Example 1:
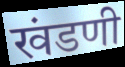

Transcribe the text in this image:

खंडणी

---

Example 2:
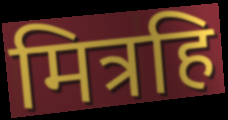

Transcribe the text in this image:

मित्रहि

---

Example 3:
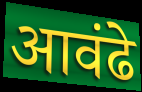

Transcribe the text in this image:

आवंढे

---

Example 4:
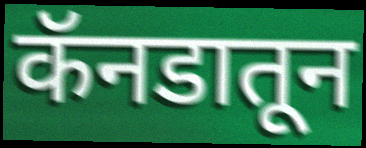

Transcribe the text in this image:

कॅनडातून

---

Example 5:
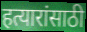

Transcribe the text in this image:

हत्यारांसाठी